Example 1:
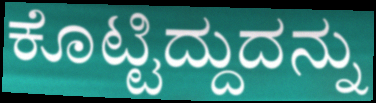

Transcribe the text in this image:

ಕೊಟ್ಟಿದ್ದುದನ್ನು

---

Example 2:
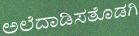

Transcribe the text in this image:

ಅಲೆದಾಡಿಸತೊಡಗಿ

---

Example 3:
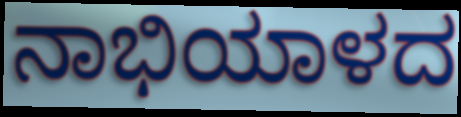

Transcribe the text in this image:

ನಾಭಿಯಾಳದ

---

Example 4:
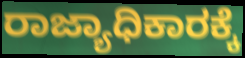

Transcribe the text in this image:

ರಾಜ್ಯಾಧಿಕಾರಕ್ಕೆ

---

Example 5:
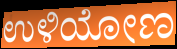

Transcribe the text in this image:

ಉಳಿಯೋಣ